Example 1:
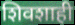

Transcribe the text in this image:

शिवशाही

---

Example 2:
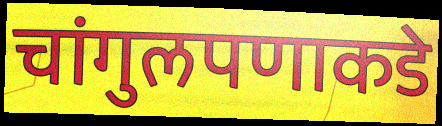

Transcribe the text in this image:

चांगुलपणाकडे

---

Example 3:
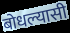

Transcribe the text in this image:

बोधल्यासी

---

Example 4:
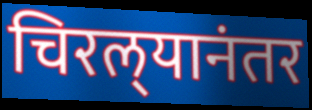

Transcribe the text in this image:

चिरल्यानंतर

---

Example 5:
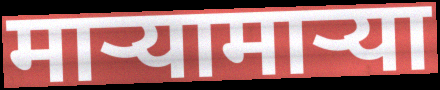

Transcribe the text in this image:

माऱ्यामाऱ्या